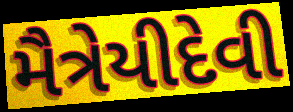
મૈત્રેયીદેવી